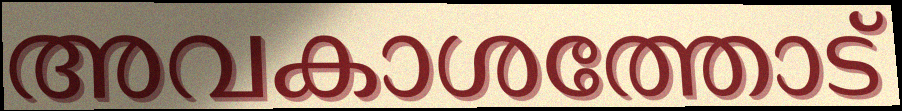
അവകാശത്തോട്